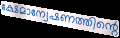
ക്ഷേമാന്വേഷണത്തിന്റെ